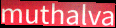
muthalva